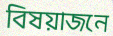
বিষয়াজনে